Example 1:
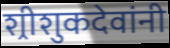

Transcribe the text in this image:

श्रीशुकदेवांनी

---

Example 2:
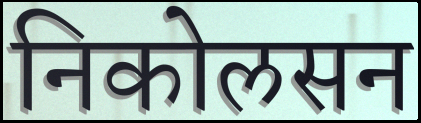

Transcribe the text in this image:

निकोलसन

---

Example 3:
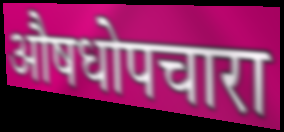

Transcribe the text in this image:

औषधोपचारा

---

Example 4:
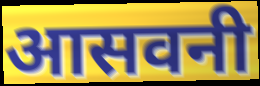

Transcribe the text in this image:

आसवनी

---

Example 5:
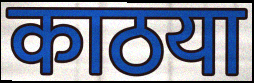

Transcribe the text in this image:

काठया